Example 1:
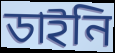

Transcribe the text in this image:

ডাইনি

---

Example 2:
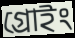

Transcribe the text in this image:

গ্রোইং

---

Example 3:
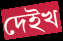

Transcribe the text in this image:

দেইখ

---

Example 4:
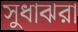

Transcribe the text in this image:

সুধাঝরা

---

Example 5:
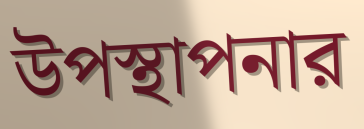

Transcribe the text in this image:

উপস্থাপনার